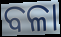
ବଳା